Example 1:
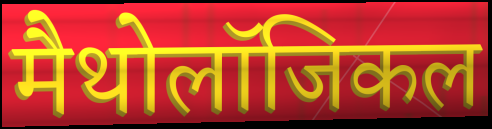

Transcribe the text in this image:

मैथोलॉजिकल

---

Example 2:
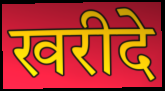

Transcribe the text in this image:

खरीदे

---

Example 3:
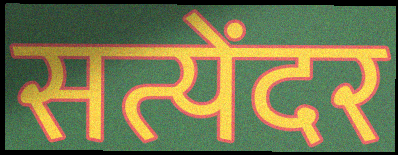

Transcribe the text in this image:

सत्येंदर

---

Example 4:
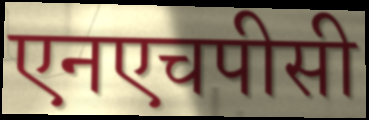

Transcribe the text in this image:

एनएचपीसी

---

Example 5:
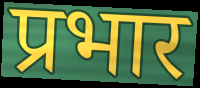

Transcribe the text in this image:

प्रभार